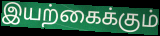
இயற்கைக்கும்